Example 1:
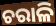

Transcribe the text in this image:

ଚରାଳି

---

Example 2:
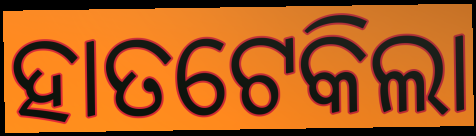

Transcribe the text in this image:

ହାତଟେକିଲା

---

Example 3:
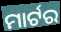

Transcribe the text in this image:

ମାର୍ଟର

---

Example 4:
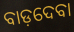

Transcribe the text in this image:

ବାଡ଼ଦେବା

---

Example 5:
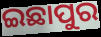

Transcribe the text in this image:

ଇଛାପୁର